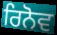
ਰਿਨੋਵ